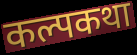
कल्पकथा